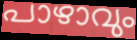
പാഴാവും